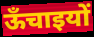
ऊँचाइयों